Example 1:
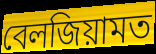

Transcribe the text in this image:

বেলজিয়ামত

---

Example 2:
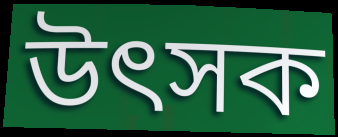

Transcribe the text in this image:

উৎসক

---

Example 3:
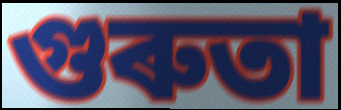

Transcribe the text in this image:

গুৰুতা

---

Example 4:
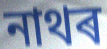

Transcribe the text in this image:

নাথৰ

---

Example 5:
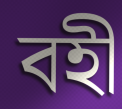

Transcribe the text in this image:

বহী